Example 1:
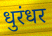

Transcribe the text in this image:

धुरंधर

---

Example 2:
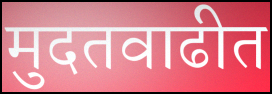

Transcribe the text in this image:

मुदतवाढीत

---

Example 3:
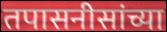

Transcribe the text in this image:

तपासनीसांच्या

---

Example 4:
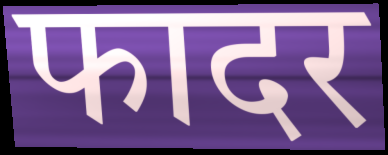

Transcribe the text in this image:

फादर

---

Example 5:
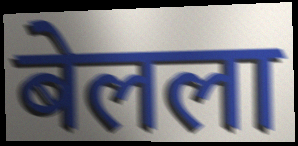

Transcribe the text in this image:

बेलला